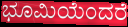
ಭೂಮಿಯೆಂದರೆ